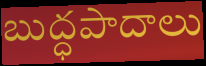
బుద్ధపాదాలు